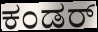
ಕಂಡರ್